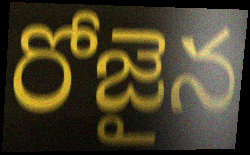
రోజైన